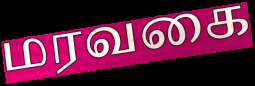
மரவகை